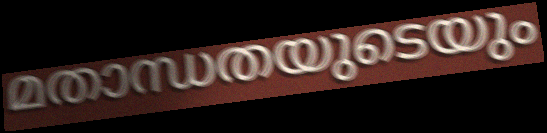
മതാന്ധതയുടെയും